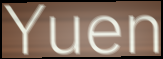
Yuen